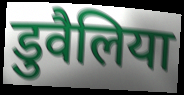
डुवैलिया